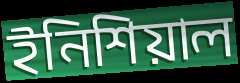
ইনিশিয়াল